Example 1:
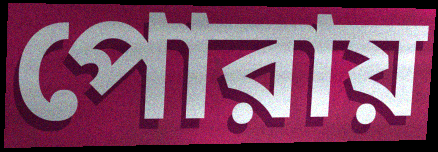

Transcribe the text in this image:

পোরায়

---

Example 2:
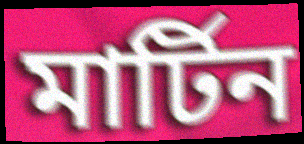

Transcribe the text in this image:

মার্টিন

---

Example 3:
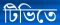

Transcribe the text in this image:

টিভিতে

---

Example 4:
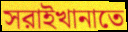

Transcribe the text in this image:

সরাইখানাতে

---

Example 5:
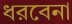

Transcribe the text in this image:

ধরবেনা